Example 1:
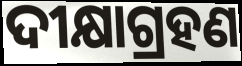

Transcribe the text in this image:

ଦୀକ୍ଷାଗ୍ରହଣ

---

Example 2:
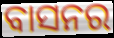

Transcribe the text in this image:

ବାସନର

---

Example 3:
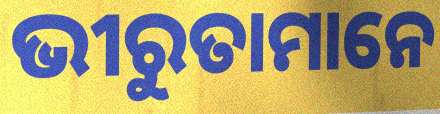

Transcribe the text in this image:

ଭୀରୁତାମାନେ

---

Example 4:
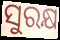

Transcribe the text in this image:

ସୁରକ୍ଷ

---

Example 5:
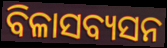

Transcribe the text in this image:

ବିଳାସବ୍ୟସନ